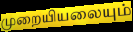
முறையியலையும்